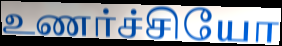
உணர்ச்சியோ